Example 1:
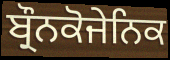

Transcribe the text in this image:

ਬ੍ਰੌਨਕੋਜੇਨਿਕ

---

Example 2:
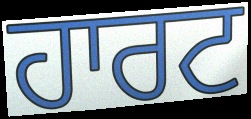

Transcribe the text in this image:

ਹਾਰਟ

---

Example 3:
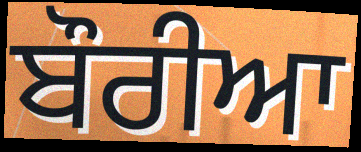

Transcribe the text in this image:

ਬੌਰੀਆ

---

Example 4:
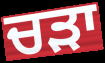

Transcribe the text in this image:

ਚੜਾ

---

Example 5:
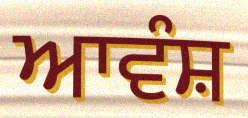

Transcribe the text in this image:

ਆਵੰਸ਼